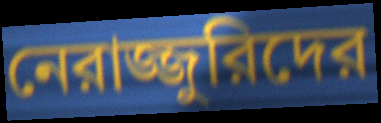
নেরাজ্জুরিদের